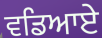
ਵਡਿਆਏ